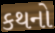
કથનો